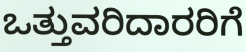
ಒತ್ತುವರಿದಾರರಿಗೆ